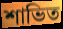
শাভিত